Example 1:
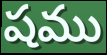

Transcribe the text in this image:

షము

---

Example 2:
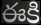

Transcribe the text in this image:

ఈకి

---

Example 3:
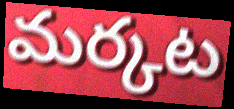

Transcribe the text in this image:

మర్కట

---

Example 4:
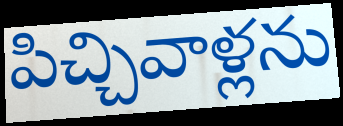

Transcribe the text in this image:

పిచ్చివాళ్లను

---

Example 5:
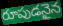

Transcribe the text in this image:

రూపుడనైన